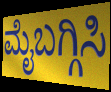
ಮೈಬಗ್ಗಿಸಿ